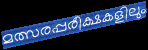
മത്സരപ്പരീക്ഷകളിലും